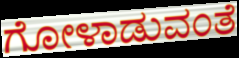
ಗೋಳಾಡುವಂತೆ